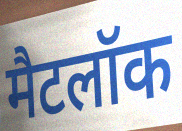
मैटलॉक